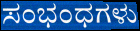
ಸಂಭಂಧಗಳು